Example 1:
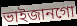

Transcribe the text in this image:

ভাইজানগো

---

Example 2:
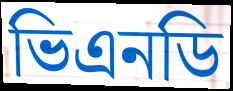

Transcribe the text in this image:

ভিএনডি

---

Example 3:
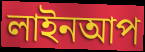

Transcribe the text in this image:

লাইনআপ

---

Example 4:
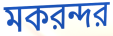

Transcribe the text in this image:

মকরন্দর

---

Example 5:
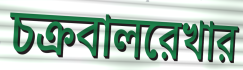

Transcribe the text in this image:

চক্রবালরেখার